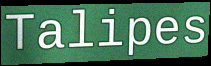
Talipes